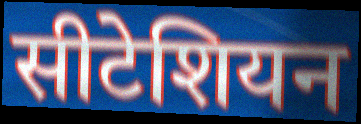
सीटेशियन